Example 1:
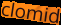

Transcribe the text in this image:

clomid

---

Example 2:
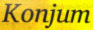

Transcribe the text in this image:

Konjum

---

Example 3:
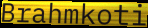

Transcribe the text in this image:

Brahmkoti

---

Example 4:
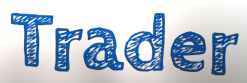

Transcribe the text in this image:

Trader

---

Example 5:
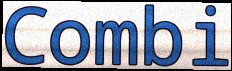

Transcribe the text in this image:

Combi